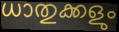
ധാതുക്കളും